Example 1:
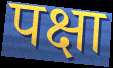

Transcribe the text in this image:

पक्षा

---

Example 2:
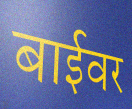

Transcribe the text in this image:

बाईवर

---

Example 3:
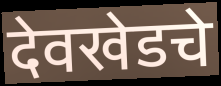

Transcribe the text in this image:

देवखेडचे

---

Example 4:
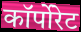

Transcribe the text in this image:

कॉर्पोरेट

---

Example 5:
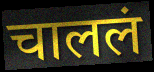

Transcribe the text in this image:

चाललं